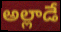
అల్లాడే